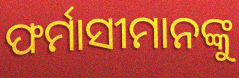
ଫର୍ମାସୀମାନଙ୍କୁ